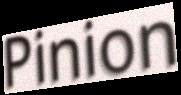
Pinion